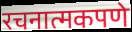
रचनात्मकपणे